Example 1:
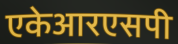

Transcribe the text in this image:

एकेआरएसपी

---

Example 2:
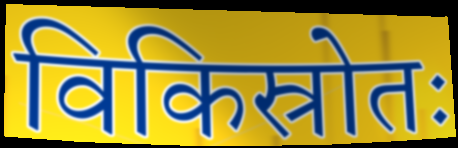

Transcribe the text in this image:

विकिस्रोतः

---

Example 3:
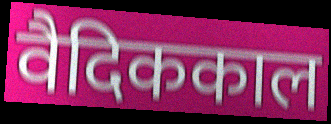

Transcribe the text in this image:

वैदिककाल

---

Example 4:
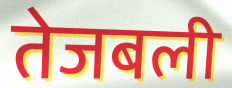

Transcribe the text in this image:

तेजबली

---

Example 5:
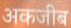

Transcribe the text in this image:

अकजीब